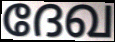
ദേഖ